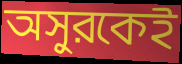
অসুরকেই